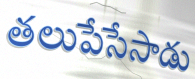
తలుపేసేసాడు